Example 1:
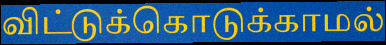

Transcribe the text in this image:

விட்டுக்கொடுக்காமல்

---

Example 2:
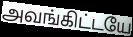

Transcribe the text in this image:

அவங்கிட்டயே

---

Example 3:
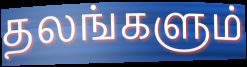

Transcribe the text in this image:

தலங்களும்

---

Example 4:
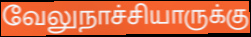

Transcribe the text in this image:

வேலுநாச்சியாருக்கு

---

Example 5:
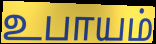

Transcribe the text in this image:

உபாயம்